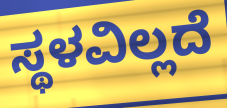
ಸ್ಥಳವಿಲ್ಲದೆ